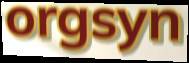
orgsyn